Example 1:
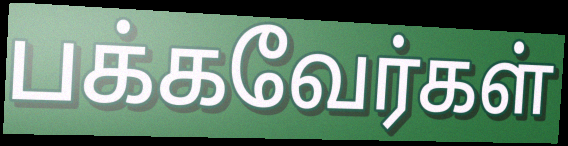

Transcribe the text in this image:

பக்கவேர்கள்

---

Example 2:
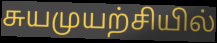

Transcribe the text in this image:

சுயமுயற்சியில்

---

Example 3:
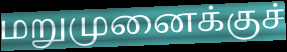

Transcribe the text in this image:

மறுமுனைக்குச்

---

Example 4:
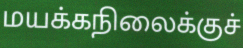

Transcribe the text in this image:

மயக்கநிலைக்குச்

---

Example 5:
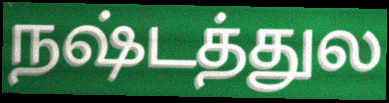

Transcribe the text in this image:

நஷ்டத்துல